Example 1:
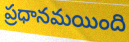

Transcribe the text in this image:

ప్రధానమయింది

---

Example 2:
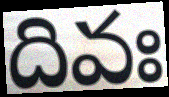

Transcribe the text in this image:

దివః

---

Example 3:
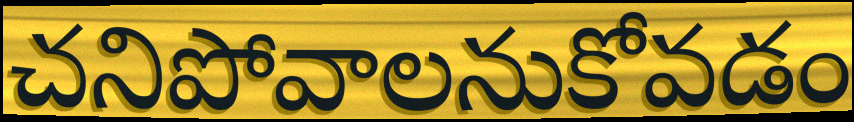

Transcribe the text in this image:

చనిపోవాలనుకోవడం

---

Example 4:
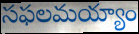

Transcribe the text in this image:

సఫలమయ్యాం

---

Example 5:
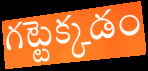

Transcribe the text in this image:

గట్టెక్కడం